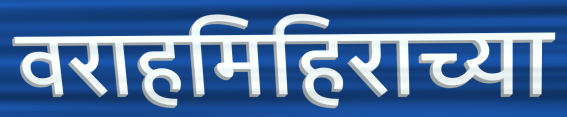
वराहमिहिराच्या